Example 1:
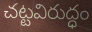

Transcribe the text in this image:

చట్టవిరుద్ధం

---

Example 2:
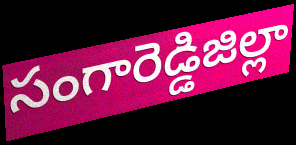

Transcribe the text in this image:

సంగారెడ్డిజిల్లా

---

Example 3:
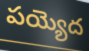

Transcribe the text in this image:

పయ్యెద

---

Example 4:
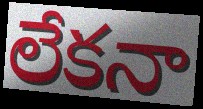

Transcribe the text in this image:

లేకనా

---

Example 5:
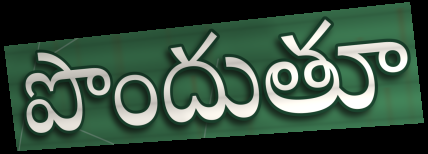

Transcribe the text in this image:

పొందుతూ